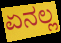
ಏನಲ್ಲ